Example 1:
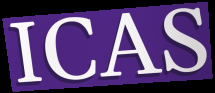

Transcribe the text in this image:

ICAS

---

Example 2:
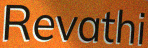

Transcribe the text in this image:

Revathi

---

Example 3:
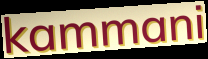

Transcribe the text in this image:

kammani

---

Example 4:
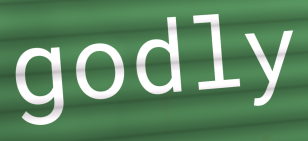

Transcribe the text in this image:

godly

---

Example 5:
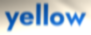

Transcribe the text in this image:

yellow